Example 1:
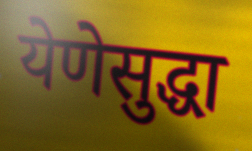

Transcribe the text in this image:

येणेसुद्धा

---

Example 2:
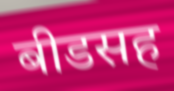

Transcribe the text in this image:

बीडसह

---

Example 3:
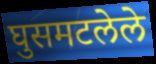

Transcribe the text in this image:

घुसमटलेले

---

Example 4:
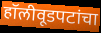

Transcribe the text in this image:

हॉलीवूडपटांचा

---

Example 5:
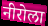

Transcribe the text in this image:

नीरोला